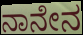
ನಾನೇನ